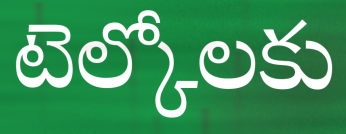
టెల్కోలకు